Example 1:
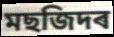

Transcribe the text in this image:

মছজিদৰ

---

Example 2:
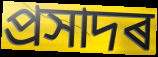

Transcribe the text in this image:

প্ৰসাদৰ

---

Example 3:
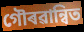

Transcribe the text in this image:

গৌৰৱান্বিত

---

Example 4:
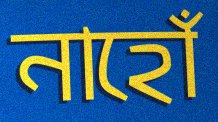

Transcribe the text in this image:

নাহোঁ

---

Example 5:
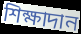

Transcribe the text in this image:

শিক্ষাদান